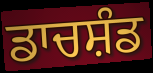
ਡਾਚਸ਼ੰਡ